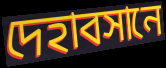
দেহাবসানে